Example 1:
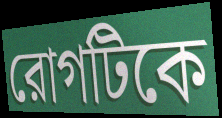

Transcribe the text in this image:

রোগটিকে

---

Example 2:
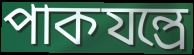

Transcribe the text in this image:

পাকযন্ত্রে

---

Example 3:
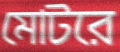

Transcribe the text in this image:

মোটরে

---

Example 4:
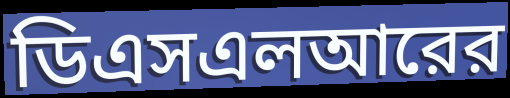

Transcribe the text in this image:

ডিএসএলআরের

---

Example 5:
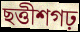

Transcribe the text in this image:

ছত্তীশগঢ়